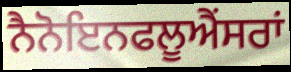
ਨੈਨੋਇਨਫਲੂਐਂਸਰਾਂ